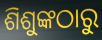
ଶିଶୁଙ୍କଠାରୁ